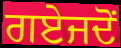
ਗਏਜਦੋਂ